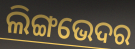
ଲିଙ୍ଗଭେଦର